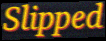
Slipped